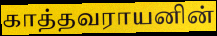
காத்தவராயனின்